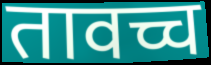
तावच्च